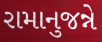
રામાનુજન્ને